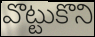
వొట్టుకొని